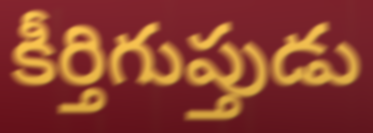
కీర్తిగుప్తుడు